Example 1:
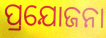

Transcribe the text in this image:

ପ୍ରଯୋଜନା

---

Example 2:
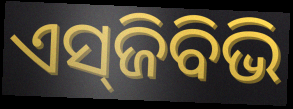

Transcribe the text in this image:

ଏସ୍‌ଜିବିଭି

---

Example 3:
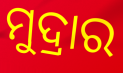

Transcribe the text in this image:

ମୁଦ୍ରାର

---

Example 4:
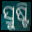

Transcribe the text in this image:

ସ୍ରୁଷ୍ଟି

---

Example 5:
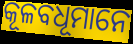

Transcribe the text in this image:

କୂଳବଧୂମାନେ